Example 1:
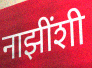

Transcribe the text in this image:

नाझींशी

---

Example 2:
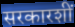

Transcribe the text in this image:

सरकारशीं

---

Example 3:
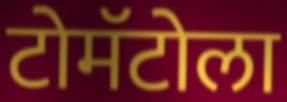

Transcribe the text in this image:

टोमॅटोला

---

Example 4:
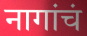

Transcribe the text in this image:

नागांचं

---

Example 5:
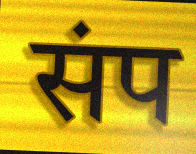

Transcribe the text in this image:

संप